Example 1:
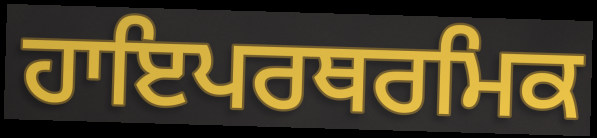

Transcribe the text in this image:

ਹਾਇਪਰਥਰਮਿਕ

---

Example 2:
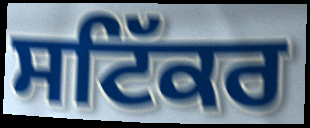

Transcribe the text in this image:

ਸਟਿੱਕਰ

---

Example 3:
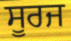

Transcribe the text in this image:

ਸੂਰਜ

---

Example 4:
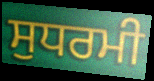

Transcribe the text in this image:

ਸੁਧਰਮੀ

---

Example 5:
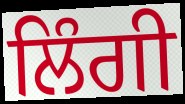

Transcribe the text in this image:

ਲਿੰਗੀ